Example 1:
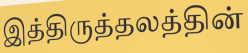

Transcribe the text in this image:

இத்திருத்தலத்தின்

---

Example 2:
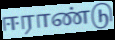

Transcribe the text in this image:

ஈராண்டு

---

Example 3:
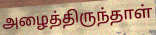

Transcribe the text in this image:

அழைத்திருந்தாள்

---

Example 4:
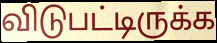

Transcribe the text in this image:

விடுபட்டிருக்க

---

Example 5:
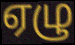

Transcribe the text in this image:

ஏழு